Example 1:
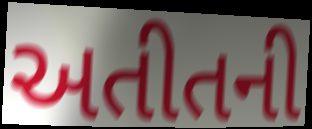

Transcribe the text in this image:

અતીતની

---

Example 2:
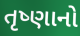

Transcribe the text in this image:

તૃષ્ણાનો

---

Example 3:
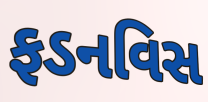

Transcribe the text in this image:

ફડનવિસ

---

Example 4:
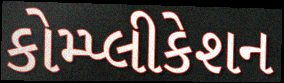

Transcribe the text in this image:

કોમ્પ્લીકેશન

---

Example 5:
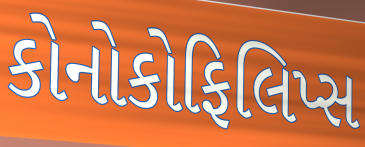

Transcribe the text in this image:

કોનોકોફિલિપ્સ